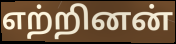
எற்றினன்